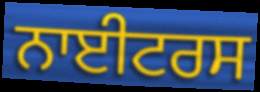
ਨਾਈਟਰਸ